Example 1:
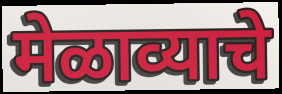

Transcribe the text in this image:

मेळाव्याचे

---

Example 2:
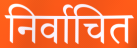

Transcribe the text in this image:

निर्वाचित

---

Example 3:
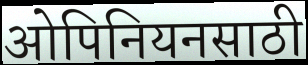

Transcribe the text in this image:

ओपिनियनसाठी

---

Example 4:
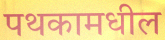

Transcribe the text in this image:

पथकामधील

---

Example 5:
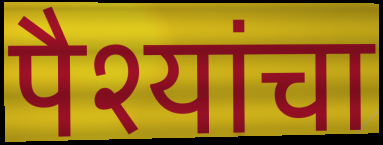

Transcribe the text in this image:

पैश्यांचा